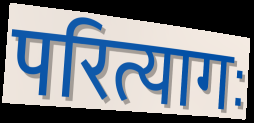
परित्यागः